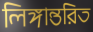
লিঙ্গান্তরিত